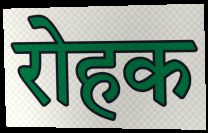
रोहक